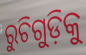
ରୁଚିଗୁଡ଼ିକୁ